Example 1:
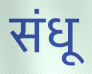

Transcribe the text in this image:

संधू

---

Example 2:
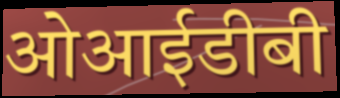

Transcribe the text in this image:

ओआईडीबी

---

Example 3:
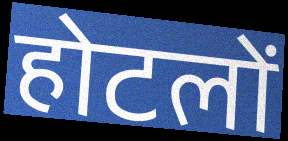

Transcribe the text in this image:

होटलों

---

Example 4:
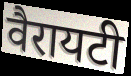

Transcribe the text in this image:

वैरायटी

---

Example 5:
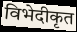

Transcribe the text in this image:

विभेदीकृत